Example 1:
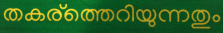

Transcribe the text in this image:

തകര്ത്തെറിയുന്നതും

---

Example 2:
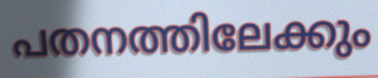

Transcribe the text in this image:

പതനത്തിലേക്കും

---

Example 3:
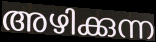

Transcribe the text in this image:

അഴിക്കുന്ന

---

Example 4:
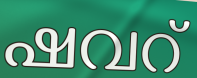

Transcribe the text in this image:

ഷവറ്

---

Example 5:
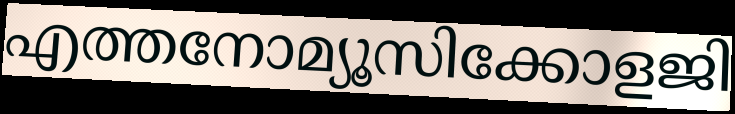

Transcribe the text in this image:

എത്തനോമ്യൂസിക്കോളജി